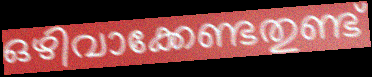
ഒഴിവാക്കേണ്ടതുണ്ട്